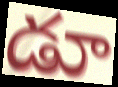
డూ